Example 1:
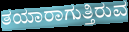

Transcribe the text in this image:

ತಯಾರಾಗುತ್ತಿರುವ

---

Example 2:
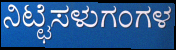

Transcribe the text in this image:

ನಿಟ್ಟೆಸಳುಗಂಗಳ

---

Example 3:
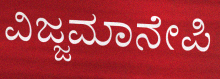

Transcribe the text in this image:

ವಿಜ್ಜಮಾನೇಪಿ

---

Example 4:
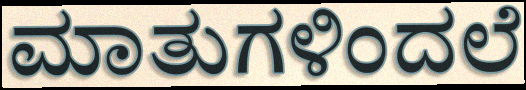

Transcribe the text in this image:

ಮಾತುಗಳಿಂದಲೆ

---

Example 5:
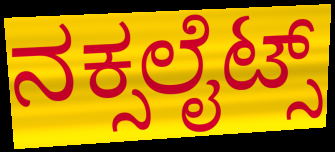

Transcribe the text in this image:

ನಕ್ಸಲೈಟ್ಸ್